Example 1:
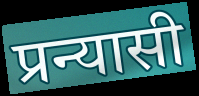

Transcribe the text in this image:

प्रन्यासी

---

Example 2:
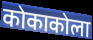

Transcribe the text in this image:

कोकाकोला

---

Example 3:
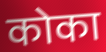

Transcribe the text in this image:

कोका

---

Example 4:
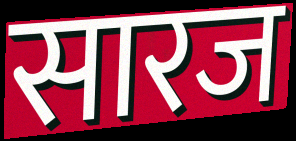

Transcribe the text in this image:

सारज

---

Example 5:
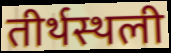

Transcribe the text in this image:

तीर्थस्थली